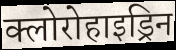
क्लोरोहाइड्रिन